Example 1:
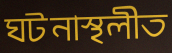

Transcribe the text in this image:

ঘটনাস্থলীত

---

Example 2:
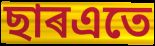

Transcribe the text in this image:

ছাৰএতে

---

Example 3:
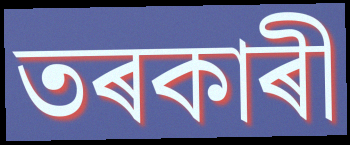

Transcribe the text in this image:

তৰকাৰী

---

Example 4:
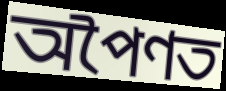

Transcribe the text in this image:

অপৈণত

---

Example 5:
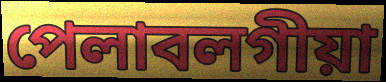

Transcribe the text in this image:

পেলাবলগীয়া